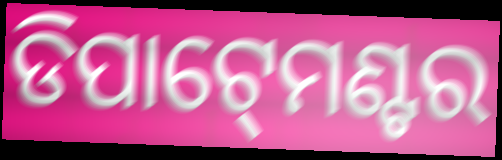
ଡିପାଟ୍‍ମେଣ୍ଟର